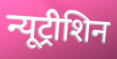
न्यूट्रीशिन